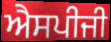
ਐਸਪੀਜੀ